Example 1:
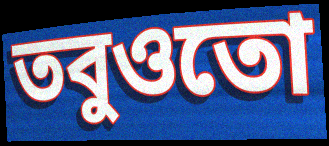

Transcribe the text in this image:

তবুওতো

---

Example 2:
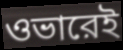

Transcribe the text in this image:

ওভারেই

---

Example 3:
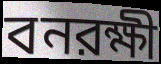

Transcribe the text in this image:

বনরক্ষী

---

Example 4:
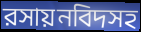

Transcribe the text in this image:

রসায়নবিদসহ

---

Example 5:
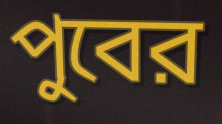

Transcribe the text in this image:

পুবের